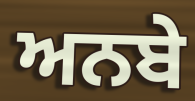
ਅਨਬੇ